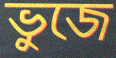
ভুজে